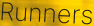
Runners